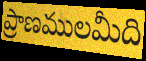
ప్రాణములమీది